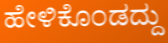
ಹೇಳಿಕೊಂಡದ್ದು